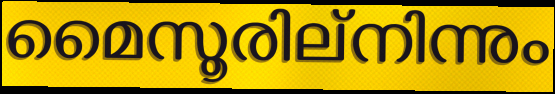
മൈസൂരില്നിന്നും